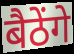
बैठेंगे